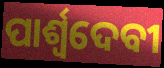
ପାର୍ଶ୍ୱଦେବୀ